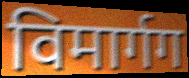
विमार्गग